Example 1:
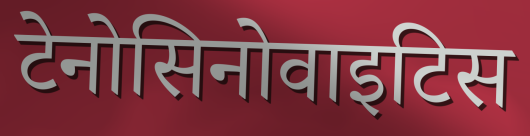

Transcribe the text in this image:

टेनोसिनोवाइटिस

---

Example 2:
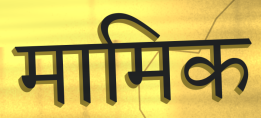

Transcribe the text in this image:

मामिक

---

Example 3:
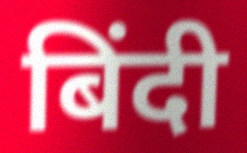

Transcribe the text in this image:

बिंदी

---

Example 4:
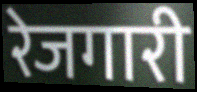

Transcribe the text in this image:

रेजगारी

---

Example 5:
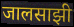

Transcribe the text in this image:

जालसाझी